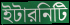
ইটারনিটি